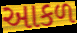
આકળ